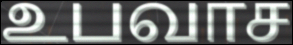
உபவாச